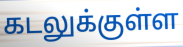
கடலுக்குள்ள